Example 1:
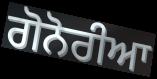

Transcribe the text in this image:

ਗੋਨੋਰੀਆ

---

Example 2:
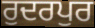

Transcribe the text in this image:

ਰੁਦਰਪੁਰ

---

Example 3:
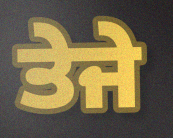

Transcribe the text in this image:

ਤੇਜੇ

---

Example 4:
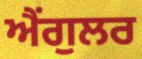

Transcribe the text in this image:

ਐਂਗੁਲਰ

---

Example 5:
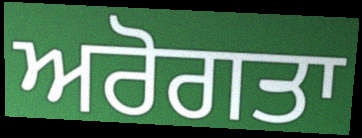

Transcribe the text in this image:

ਅਰੋਗਤਾ